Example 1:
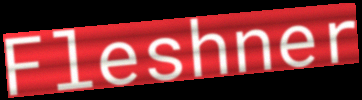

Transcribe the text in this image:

Fleshner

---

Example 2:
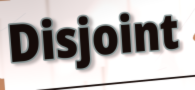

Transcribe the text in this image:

Disjoint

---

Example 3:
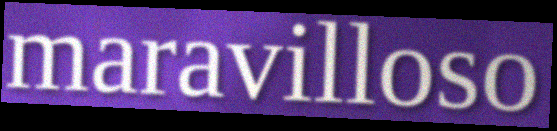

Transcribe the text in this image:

maravilloso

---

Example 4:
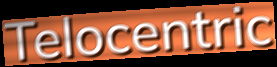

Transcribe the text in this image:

Telocentric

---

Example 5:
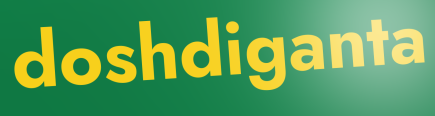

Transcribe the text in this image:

doshdiganta